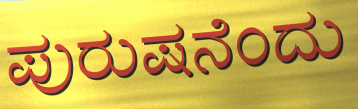
ಪುರುಷನೆಂದು